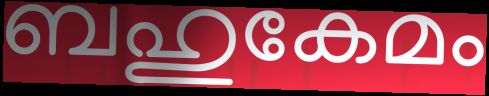
ബഹുകേമം